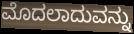
ಮೊದಲಾದುವನ್ನು